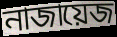
নাজায়েজ